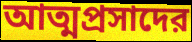
আত্মপ্রসাদের